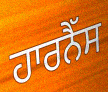
ਹਾਰਨੈੱਸ